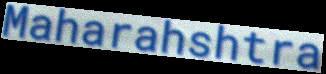
Maharahshtra